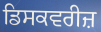
ਡਿਸਕਵਰੀਜ਼